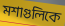
মশাগুলিকে